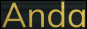
Anda